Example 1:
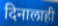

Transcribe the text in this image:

दिनालाही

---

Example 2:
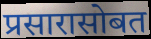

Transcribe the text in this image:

प्रसारासोबत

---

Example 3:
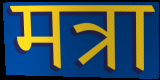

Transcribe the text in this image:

मत्रा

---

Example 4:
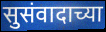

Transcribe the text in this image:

सुसंवादाच्या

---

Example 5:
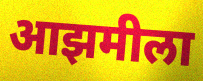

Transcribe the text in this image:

आझमीला